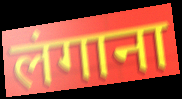
लंगाना